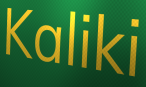
Kaliki